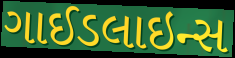
ગાઈડલાઇન્સ